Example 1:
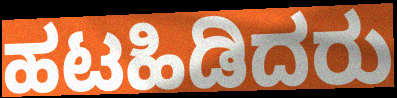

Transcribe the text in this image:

ಹಟಹಿಡಿದರು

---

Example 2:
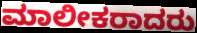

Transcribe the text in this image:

ಮಾಲೀಕರಾದರು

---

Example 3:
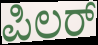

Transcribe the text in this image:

ಪಿಲರ್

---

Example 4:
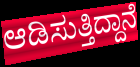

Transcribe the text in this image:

ಆಡಿಸುತ್ತಿದ್ದಾನೆ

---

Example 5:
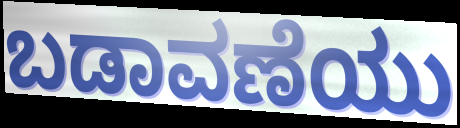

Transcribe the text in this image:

ಬಡಾವಣೆಯು